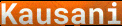
Kausani